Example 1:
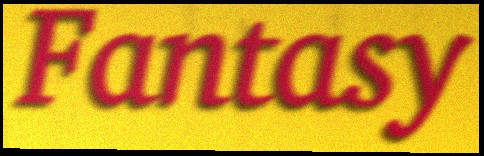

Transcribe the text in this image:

Fantasy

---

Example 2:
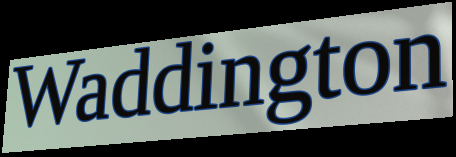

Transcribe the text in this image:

Waddington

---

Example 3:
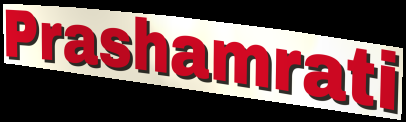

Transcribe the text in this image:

Prashamrati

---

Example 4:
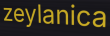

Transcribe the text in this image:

zeylanica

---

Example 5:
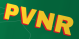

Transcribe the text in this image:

PVNR